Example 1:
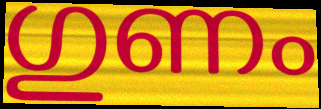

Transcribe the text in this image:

ഗുണം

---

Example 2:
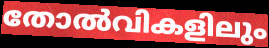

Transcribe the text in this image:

തോൽവികളിലും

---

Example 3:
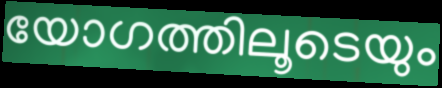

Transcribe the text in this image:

യോഗത്തിലൂടെയും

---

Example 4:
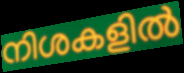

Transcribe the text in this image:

നിശകളിൽ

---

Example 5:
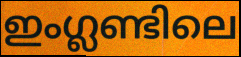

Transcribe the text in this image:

ഇംഗ്ലണ്ടിലെ